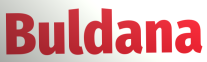
Buldana